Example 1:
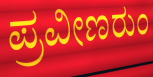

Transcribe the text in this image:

ಪ್ರವೀಣರುಂ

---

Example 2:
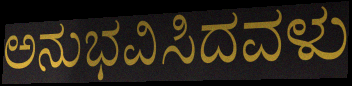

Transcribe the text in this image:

ಅನುಭವಿಸಿದವಳು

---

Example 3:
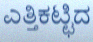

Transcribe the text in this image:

ಎತ್ತಿಕಟ್ಟಿದ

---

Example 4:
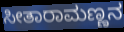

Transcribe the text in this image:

ಸೀತಾರಾಮಣ್ಣನ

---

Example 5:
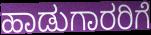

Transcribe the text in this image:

ಹಾಡುಗಾರರಿಗೆ